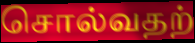
சொல்வதற்